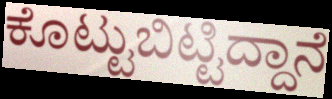
ಕೊಟ್ಟುಬಿಟ್ಟಿದ್ದಾನೆ